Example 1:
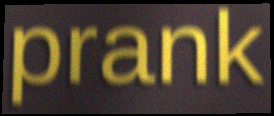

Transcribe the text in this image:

prank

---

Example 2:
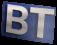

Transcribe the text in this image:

BT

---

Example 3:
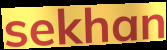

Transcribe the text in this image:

sekhan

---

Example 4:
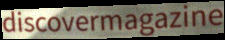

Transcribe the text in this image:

discovermagazine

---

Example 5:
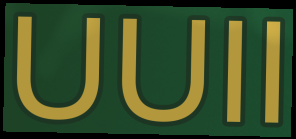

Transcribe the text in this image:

UUII